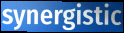
synergistic